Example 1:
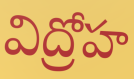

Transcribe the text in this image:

విద్రోహ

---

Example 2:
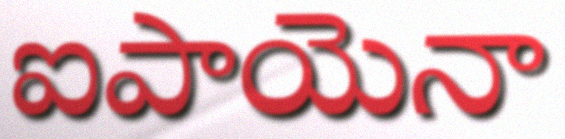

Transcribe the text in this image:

ఐపాయెనా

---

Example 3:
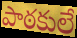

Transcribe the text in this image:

పాఠకులే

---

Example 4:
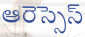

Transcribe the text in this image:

ఆరెస్సెస్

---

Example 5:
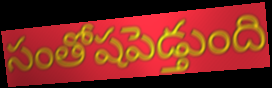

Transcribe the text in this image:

సంతోషపెడ్తుంది